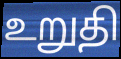
உறுதி